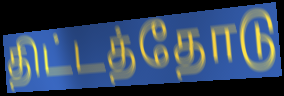
திட்டத்தோடு